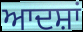
ਆਦਸ਼ਾਂ